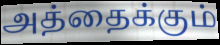
அத்தைக்கும்